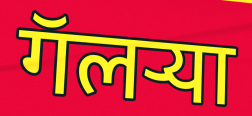
गॅलऱ्या